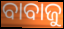
ବାବାଜୁ